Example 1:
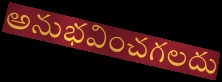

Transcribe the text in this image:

అనుభవించగలదు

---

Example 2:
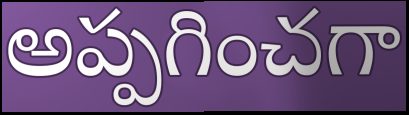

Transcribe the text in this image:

అప్పగించగా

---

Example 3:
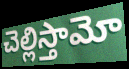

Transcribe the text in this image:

చెల్లిస్తామో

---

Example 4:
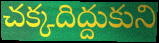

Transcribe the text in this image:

చక్కదిద్దుకుని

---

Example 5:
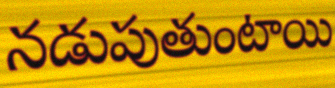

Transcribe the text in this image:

నడుపుతుంటాయి